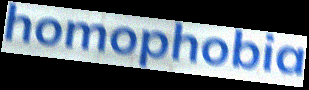
homophobia